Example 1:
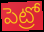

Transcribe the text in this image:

పెట్రో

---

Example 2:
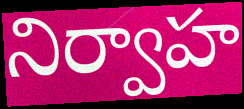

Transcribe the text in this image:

నిర్వాహ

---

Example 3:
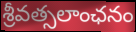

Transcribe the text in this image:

శ్రీవత్సలాంఛనం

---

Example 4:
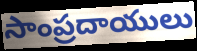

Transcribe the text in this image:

సాంప్రదాయులు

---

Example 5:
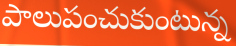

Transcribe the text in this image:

పాలుపంచుకుంటున్న